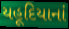
યહૂદિયાનાં